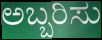
ಅಬ್ಬರಿಸು